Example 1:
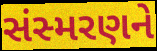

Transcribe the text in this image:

સંસ્મરણને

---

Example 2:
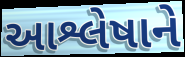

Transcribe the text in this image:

આશ્લેષાને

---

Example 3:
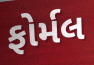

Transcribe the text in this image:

ફોર્મલ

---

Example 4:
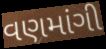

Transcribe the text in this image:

વણમાંગી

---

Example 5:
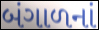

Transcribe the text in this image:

બંગાળનાં